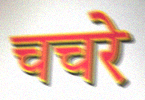
चचरे